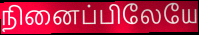
நினைப்பிலேயே